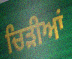
ਚਿੜੀਆਂ